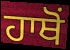
ਹਾਥੋਂ